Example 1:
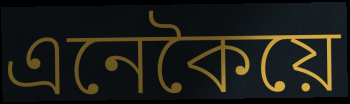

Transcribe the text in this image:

এনেকৈয়ে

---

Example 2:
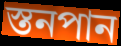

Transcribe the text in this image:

স্তনপান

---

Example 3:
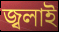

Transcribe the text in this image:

জ্বলাই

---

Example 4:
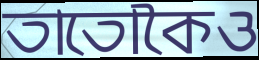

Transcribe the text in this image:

তাতোকৈও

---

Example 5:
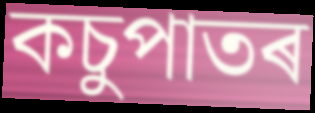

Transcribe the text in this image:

কচুপাতৰ